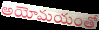
అయోమయంతో